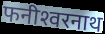
फनीश्वरनाथ